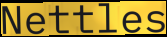
Nettles